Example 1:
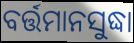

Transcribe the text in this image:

ବର୍ତ୍ତମାନସୁଦ୍ଧା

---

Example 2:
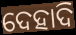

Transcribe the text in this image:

ଦେହାଦି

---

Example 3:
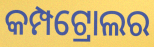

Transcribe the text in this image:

କମ୍ପଟ୍ରୋଲର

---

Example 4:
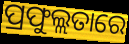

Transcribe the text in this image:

ପ୍ରଫୁଲ୍ଲତାରେ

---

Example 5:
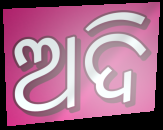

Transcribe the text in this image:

ଅଦି